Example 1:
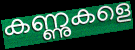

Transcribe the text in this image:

കണ്ണുകളെ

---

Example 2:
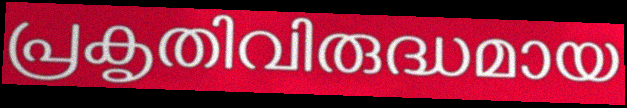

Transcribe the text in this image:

പ്രകൃതിവിരുദ്ധമായ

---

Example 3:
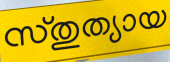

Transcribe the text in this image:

സ്തുത്യായ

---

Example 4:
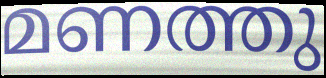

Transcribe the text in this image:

മണത്തു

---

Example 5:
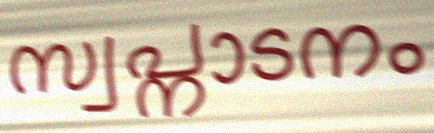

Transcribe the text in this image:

സ്വപ്നാടനം